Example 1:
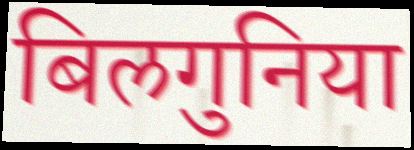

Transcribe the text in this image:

बिलगुनिया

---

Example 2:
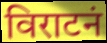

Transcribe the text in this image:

विराटनं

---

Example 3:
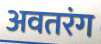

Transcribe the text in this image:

अवतरंग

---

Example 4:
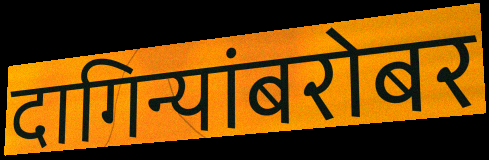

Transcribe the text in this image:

दागिन्यांबरोबर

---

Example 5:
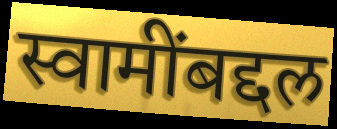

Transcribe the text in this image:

स्वामींबद्दल